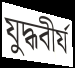
যুদ্ধবীর্য